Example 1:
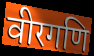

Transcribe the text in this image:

वीरगणि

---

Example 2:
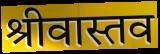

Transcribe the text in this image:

श्रीवास्तव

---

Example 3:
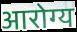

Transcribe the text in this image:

आरोग्य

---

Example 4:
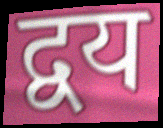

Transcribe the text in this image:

द्वय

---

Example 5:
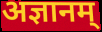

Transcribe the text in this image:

अज्ञानम्